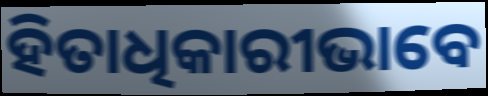
ହିତାଧିକାରୀଭାବେ